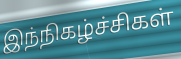
இந்நிகழ்ச்சிகள்